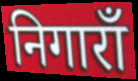
निगाराँ